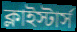
ক্লাইস্টার্স